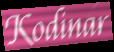
Kodinar